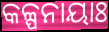
କଳ୍ପନାୟାଃ